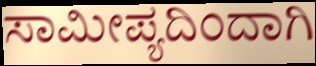
ಸಾಮೀಪ್ಯದಿಂದಾಗಿ